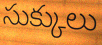
సుక్కులు